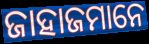
ଜାହାଜମାନେ